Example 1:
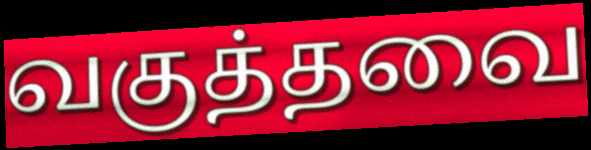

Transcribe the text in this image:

வகுத்தவை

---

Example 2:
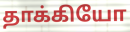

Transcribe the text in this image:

தாக்கியோ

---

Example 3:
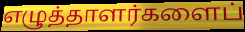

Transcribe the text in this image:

எழுத்தாளர்களைப்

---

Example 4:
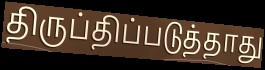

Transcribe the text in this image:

திருப்திப்படுத்தாது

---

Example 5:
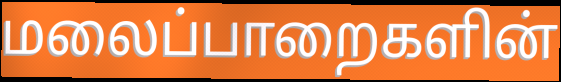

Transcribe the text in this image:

மலைப்பாறைகளின்